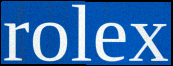
rolex